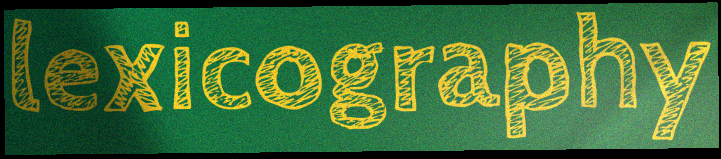
lexicography